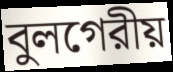
বুলগেরীয়